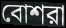
বোশরা